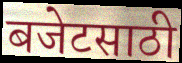
बजेटसाठी